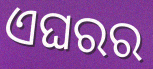
ଏଘରର